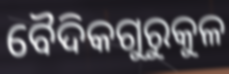
ବୈଦିକଗୁରୁକୁଳ